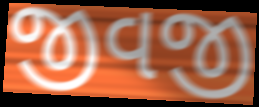
જીવજી